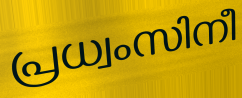
പ്രധ്വംസിനീ